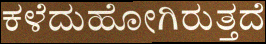
ಕಳೆದುಹೋಗಿರುತ್ತದೆ